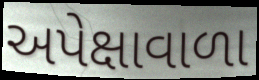
અપેક્ષાવાળા